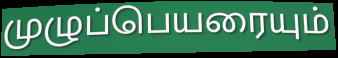
முழுப்பெயரையும்